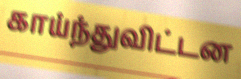
காய்ந்துவிட்டன